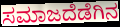
ಸಮಾಜದೆಡೆಗಿನ